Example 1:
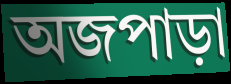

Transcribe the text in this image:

অজপাড়া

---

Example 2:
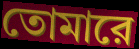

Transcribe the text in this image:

তোমারে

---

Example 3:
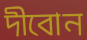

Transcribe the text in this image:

দীবোন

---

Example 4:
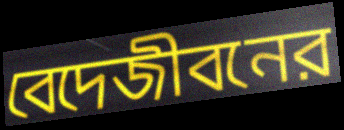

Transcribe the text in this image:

বেদেজীবনের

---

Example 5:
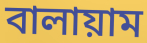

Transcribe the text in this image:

বালায়াম